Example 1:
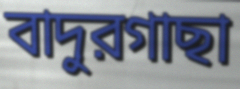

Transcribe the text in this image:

বাদুরগাছা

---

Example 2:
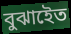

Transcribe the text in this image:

বুঝাইেত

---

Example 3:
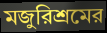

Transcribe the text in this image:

মজুরিশ্রমের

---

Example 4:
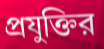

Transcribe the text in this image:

প্রযুক্তির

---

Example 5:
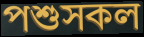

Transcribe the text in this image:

পশুসকল